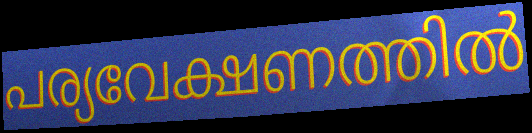
പര്യവേക്ഷണത്തിൽ